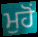
ਮੁਹੋਂ